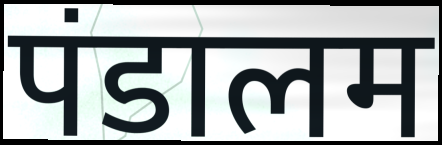
पंडालम